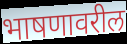
भाषणावरील